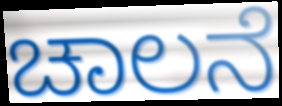
ಚಾಲನೆ